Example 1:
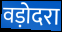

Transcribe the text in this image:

वड़ोदरा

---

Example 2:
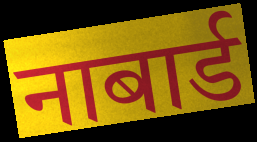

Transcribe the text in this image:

नाबार्ड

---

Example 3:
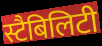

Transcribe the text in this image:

स्टैबिलिटी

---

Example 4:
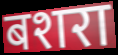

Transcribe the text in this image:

बशरा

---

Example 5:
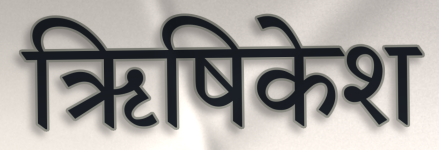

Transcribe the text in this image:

ऋिषिकेश